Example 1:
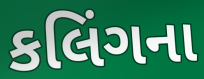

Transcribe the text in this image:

કલિંગના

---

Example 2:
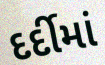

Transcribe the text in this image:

દર્દીમાં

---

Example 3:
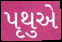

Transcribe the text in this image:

પૃથુએ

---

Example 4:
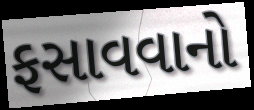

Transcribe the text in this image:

ફસાવવાનો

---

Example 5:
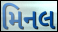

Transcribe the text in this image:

મિનલ